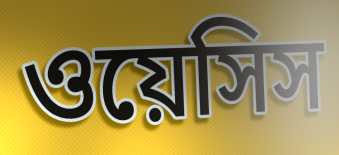
ওয়েসিস